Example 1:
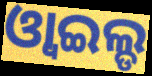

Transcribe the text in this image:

ଓ୍ବାଇଲ୍ଡ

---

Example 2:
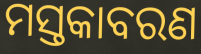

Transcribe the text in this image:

ମସ୍ତକାବରଣ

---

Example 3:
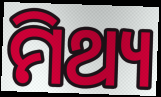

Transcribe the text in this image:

ମିଥ୍ୟ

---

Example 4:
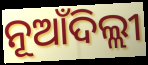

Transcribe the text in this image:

ନୂଆଁଦିଲ୍ଲୀ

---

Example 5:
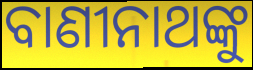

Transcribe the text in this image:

ବାଣୀନାଥଙ୍କୁ